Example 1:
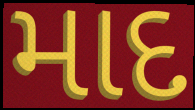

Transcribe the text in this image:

માદ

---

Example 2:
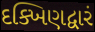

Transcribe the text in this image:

દક્ખિણદ્વારં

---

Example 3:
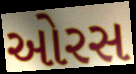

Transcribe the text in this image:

ઓરસ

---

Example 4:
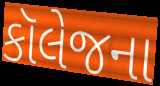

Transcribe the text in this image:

કૉલેજના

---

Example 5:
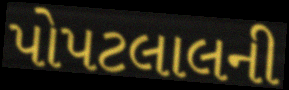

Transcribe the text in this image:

પોપટલાલની